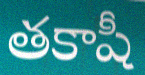
తకాషీ